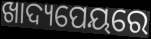
ଖାଦ୍ୟପେୟରେ